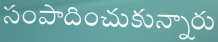
సంపాదించుకున్నారు